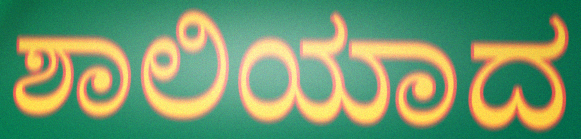
ಶಾಲಿಯಾದ